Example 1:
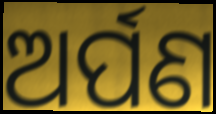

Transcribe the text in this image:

ଅର୍ପଣ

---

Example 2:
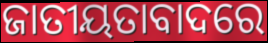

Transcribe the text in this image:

ଜାତୀୟତାବାଦରେ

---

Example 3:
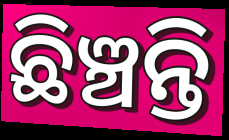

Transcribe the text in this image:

ଛିଞ୍ଚନ୍ତି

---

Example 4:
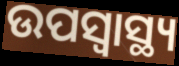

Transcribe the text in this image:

ଉପସ୍ୱାସ୍ଥ୍ୟ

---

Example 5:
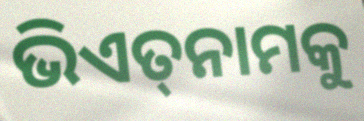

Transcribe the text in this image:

ଭିଏତ୍‌ନାମକୁ